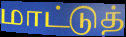
மாட்டுத்